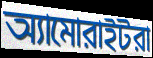
অ্যামোরাইটরা